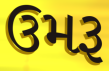
ઉમરૂ